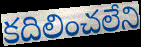
కదిలించలేని